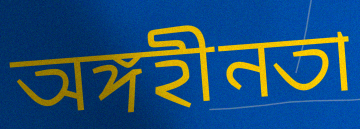
অঙ্গহীনতা